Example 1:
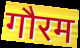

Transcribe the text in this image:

गौरम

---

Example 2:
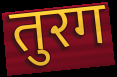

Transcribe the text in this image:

तुरग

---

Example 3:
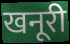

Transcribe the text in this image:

खनूरी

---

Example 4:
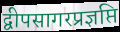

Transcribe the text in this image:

द्वीपसागरप्रज्ञप्ति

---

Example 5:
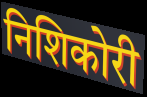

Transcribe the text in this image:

निशिकोरी